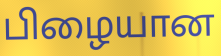
பிழையான